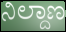
ನಿಲ್ದಾಣ